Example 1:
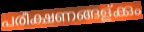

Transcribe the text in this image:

പരീക്ഷണങ്ങള്ക്കും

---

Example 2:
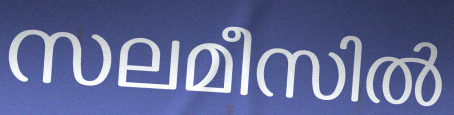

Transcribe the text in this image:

സലമീസിൽ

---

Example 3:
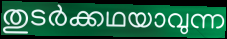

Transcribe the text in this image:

തുടർക്കഥയാവുന്ന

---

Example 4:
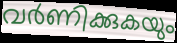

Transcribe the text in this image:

വർണിക്കുകയും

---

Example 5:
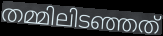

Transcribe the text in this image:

തമ്മിലിടഞ്ഞത്